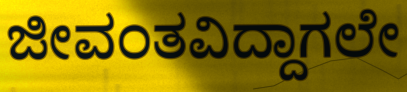
ಜೀವಂತವಿದ್ದಾಗಲೇ